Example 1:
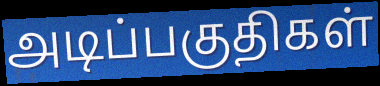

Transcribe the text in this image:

அடிப்பகுதிகள்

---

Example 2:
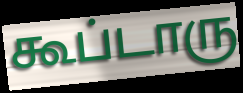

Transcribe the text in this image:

கூப்டாரு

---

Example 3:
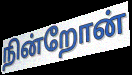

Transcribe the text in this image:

நின்றோன்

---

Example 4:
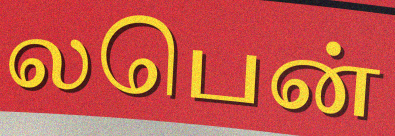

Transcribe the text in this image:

லபென்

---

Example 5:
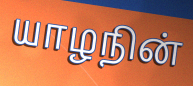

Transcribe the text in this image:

யாழநின்